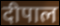
दीपाल